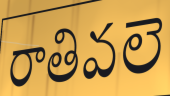
రాతివలె